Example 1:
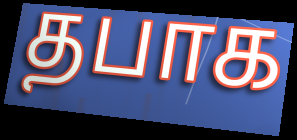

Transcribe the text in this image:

தபாக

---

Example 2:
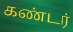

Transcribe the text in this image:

கண்டர்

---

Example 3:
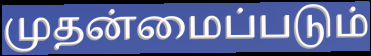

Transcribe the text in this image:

முதன்மைப்படும்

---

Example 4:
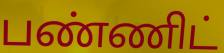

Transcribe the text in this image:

பண்ணிட்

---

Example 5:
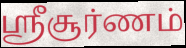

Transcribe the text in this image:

ஸ்ரீசூர்ணம்